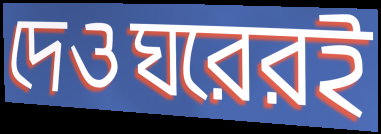
দেওঘরেরই